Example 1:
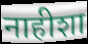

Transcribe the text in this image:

नाहीशा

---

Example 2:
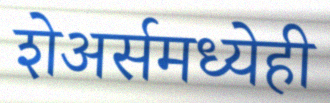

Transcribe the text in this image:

शेअर्समध्येही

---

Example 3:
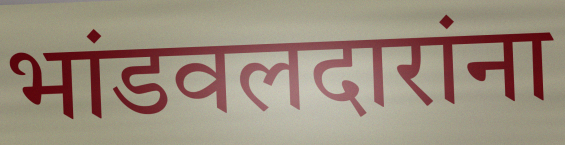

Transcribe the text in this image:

भांडवलदारांना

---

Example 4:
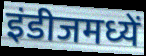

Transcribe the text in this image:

इंडीजमध्यें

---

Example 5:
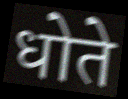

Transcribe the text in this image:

धोते